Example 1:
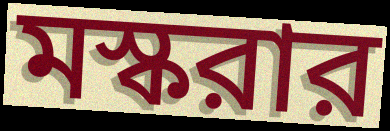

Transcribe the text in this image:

মস্করার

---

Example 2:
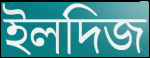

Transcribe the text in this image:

ইলদিজ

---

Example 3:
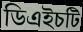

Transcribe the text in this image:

ডিএইচটি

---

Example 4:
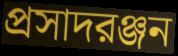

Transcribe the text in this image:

প্রসাদরঞ্জন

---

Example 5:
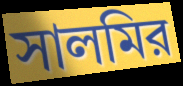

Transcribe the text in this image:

সালমির